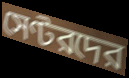
সেণ্টরদের